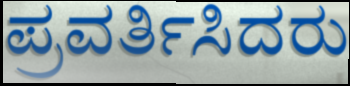
ಪ್ರವರ್ತಿಸಿದರು